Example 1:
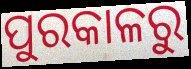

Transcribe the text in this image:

ପୁରକାଳରୁ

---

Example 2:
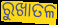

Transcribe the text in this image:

ରୁଖାତଳ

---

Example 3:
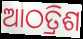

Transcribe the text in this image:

ଆଠତ୍ରିଶ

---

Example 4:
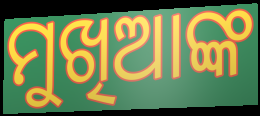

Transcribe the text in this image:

ମୁଖିଆଙ୍କ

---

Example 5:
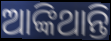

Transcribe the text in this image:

ଆଙ୍କିଥାନ୍ତି